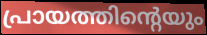
പ്രായത്തിന്റെയും